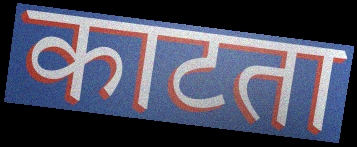
काटता